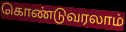
கொண்டுவரலாம்